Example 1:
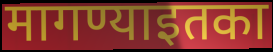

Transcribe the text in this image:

मागण्याइतका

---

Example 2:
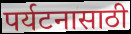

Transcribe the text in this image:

पर्यटनासाठी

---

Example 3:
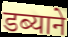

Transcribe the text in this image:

डब्याने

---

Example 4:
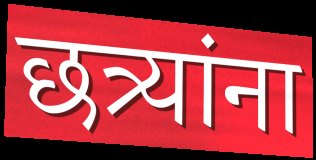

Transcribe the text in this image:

छत्र्यांना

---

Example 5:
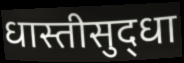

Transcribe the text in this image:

धास्तीसुद्धा